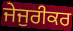
ਜੇਜੁਰੀਕਰ